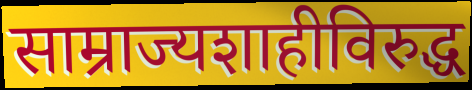
साम्राज्यशाहीविरुद्ध